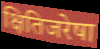
क्षितिजरेषा